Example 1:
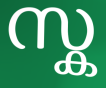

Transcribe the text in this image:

സ്ക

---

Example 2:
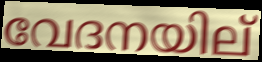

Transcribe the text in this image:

വേദനയില്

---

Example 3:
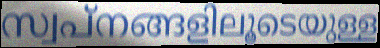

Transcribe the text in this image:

സ്വപ്നങ്ങളിലൂടെയുള്ള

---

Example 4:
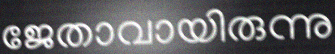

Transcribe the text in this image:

ജേതാവായിരുന്നു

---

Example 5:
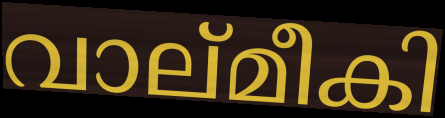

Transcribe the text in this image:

വാല്മീകി